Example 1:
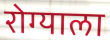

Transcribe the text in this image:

रोग्याला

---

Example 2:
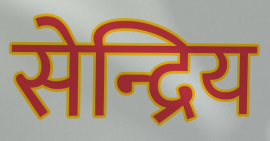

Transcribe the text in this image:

सेन्द्रिय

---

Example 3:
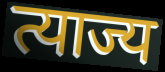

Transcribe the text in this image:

त्याज्य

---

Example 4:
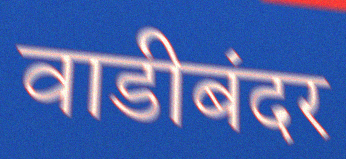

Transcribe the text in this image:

वाडीबंदर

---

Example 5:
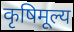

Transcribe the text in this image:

कृषिमूल्य